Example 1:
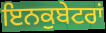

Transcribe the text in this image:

ਇਨਕੁਬੇਟਰਾਂ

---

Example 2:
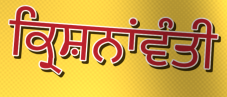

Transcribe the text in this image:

ਕ੍ਰਿਸ਼ਨਾਂਵੰਤੀ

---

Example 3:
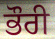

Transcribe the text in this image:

ਭੌਰੀ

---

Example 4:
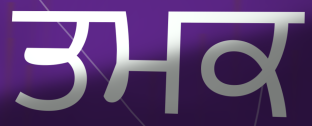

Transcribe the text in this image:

ਤਮਕ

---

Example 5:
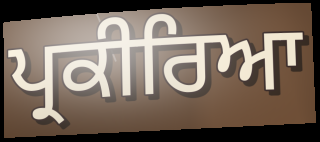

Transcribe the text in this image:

ਪ੍ਰਕੀਰਿਆ